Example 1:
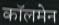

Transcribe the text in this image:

कॉलमेन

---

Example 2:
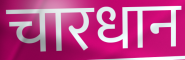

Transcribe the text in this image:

चारधान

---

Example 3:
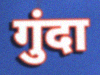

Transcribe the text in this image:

गुंदा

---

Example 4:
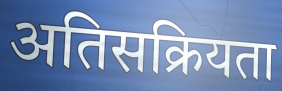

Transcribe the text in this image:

अतिसक्रियता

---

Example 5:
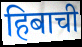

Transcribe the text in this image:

हिबाची